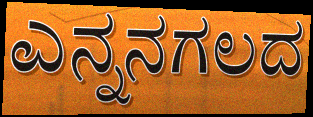
ಎನ್ನನಗಲದ